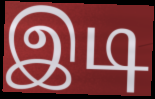
இடி